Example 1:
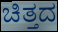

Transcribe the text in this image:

ಚಿತ್ತದ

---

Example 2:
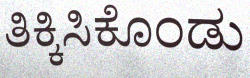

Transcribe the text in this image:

ತಿಕ್ಕಿಸಿಕೊಂಡು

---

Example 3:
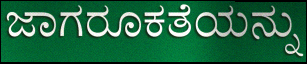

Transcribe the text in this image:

ಜಾಗರೂಕತೆಯನ್ನು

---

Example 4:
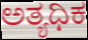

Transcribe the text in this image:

ಅತ್ಯಧಿಕ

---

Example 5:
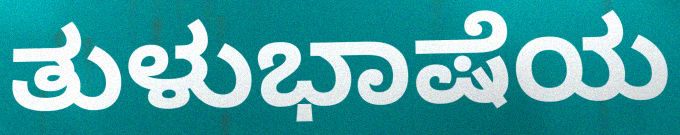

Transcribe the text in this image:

ತುಳುಭಾಷೆಯ